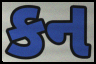
કન